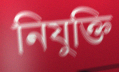
নিযুক্তি